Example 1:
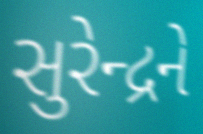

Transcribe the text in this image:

સુરેન્દ્રને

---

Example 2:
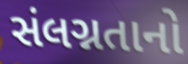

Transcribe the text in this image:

સંલગ્નતાનો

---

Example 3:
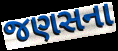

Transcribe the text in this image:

જણસના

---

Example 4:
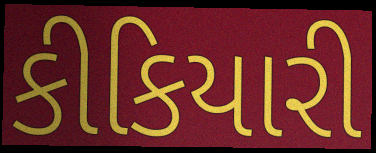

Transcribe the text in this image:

કીકિયારી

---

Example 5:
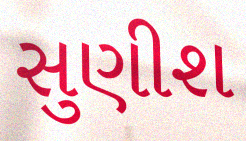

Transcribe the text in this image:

સુણીશ